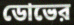
ডোভের